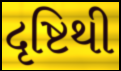
દૃષ્ટિથી